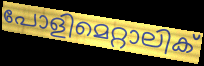
പോളിമെറ്റാലിക്